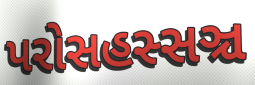
પરોસહસ્સઞ્ચ